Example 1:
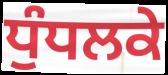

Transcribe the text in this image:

ਧੁੰਧਲਕੇ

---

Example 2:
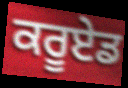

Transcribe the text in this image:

ਕਰੂਏਡ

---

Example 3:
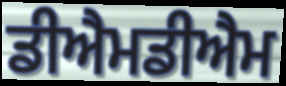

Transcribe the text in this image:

ਡੀਐਮਡੀਐਮ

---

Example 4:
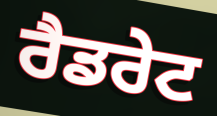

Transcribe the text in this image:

ਰੈਡਰੇਟ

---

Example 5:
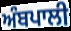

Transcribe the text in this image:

ਅੰਬਪਾਲੀ